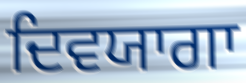
ਦਿਵਯਾਗਾ